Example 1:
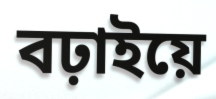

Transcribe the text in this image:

বঢ়াইয়ে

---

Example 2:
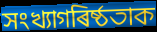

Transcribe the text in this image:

সংখ্যাগৰিষ্ঠতাক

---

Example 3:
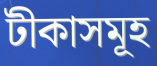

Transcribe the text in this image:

টীকাসমূহ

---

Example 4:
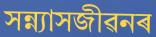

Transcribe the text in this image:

সন্ন্যাসজীৱনৰ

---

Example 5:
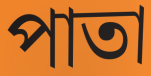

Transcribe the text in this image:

পাতা